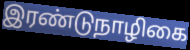
இரண்டுநாழிகை